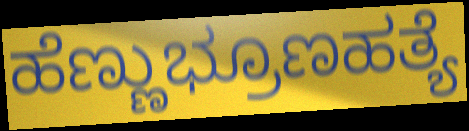
ಹೆಣ್ಣುಭ್ರೂಣಹತ್ಯೆ